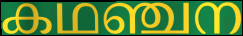
കഥഞ്ചന